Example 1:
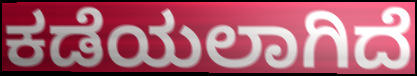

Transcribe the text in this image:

ಕಡೆಯಲಾಗಿದೆ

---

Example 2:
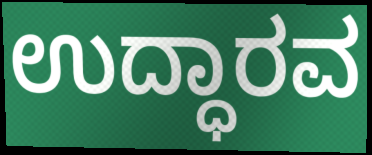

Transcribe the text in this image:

ಉದ್ಧಾರವ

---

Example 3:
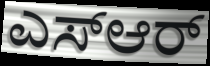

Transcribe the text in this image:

ಎಸ್ಆರ್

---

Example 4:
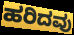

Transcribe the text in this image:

ಹರಿದವು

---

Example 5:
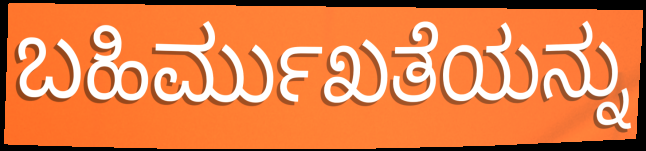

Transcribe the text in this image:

ಬಹಿರ್ಮುಖತೆಯನ್ನು